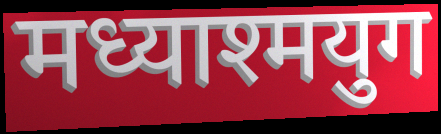
मध्याश्मयुग